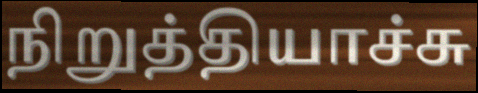
நிறுத்தியாச்சு